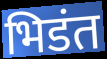
भिडंत